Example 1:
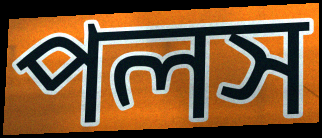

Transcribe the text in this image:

পলস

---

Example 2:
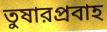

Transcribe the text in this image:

তুষারপ্রবাহ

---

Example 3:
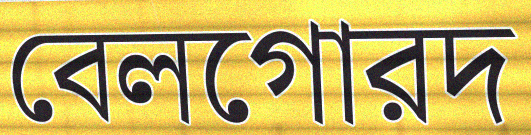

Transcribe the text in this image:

বেলগোরদ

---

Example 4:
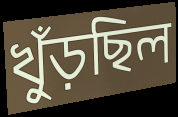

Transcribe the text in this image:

খুঁড়ছিল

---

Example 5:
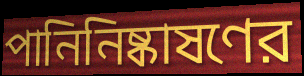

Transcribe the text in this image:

পানিনিষ্কাষণের